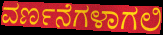
ವರ್ಣನೆಗಳಾಗಲಿ